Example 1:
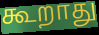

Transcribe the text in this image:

கூறாது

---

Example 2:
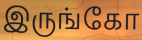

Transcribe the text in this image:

இருங்கோ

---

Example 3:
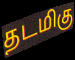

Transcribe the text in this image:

தடமிகு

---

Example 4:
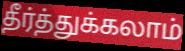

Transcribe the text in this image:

தீர்த்துக்கலாம்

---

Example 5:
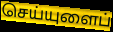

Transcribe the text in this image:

செய்யுளைப்